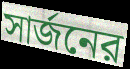
সার্জনের